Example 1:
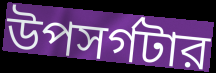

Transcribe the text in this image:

উপসর্গটার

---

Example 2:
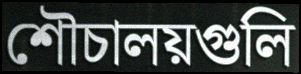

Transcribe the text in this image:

শৌচালয়গুলি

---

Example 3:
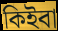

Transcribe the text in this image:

কিইবা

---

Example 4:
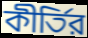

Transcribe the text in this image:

কীর্তির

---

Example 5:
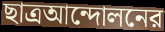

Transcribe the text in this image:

ছাত্রআন্দোলনের